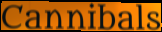
Cannibals